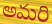
అమరి